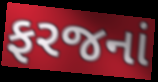
ફરજનાં